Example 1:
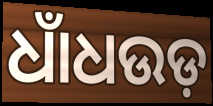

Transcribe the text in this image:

ଧାଁଧଉଡ଼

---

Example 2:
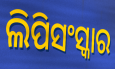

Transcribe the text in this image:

ଲିପିସଂସ୍କାର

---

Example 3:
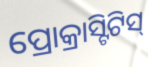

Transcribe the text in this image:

ପ୍ରୋକ୍ରାସ୍ଟିଟିସ୍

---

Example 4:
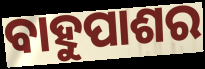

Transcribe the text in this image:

ବାହୁପାଶର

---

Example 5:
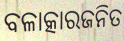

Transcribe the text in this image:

ବଳାତ୍କାରଜନିତ